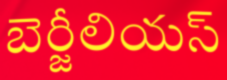
బెర్జీలియస్